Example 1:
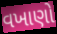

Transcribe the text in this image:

વખાણો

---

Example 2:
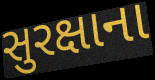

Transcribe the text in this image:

સુરક્ષાના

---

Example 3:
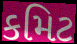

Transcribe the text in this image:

કમિટ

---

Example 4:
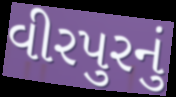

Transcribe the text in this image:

વીરપુરનું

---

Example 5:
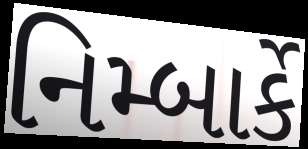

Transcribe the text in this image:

નિમ્બાર્કે